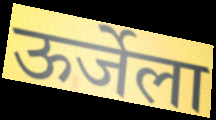
ऊर्जेला